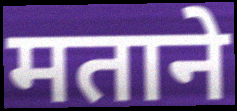
मताने